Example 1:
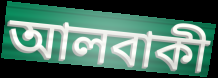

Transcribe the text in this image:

আলবাকী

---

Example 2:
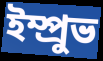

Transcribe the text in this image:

ইম্প্রুভ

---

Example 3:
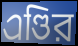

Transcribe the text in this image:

এণ্ডির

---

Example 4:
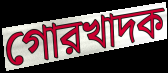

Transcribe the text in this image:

গোরখাদক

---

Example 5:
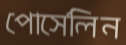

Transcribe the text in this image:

পোর্সেলিন